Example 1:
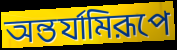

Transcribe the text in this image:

অন্তর্যামিরূপে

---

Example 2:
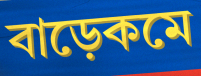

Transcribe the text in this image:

বাড়েকমে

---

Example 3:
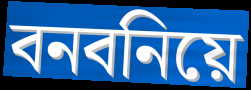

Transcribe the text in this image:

বনবনিয়ে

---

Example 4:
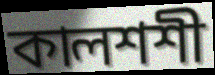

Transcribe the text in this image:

কালশশী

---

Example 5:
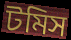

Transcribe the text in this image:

টমিস